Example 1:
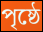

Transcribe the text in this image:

পৃষ্ঠে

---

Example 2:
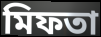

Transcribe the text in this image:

মিফতা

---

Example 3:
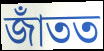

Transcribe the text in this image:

জাঁতত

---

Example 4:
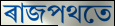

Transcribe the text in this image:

ৰাজপথতে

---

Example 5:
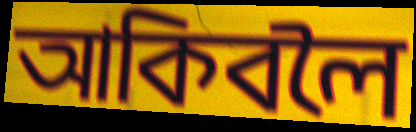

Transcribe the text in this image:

আকিবলৈ